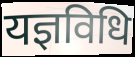
यज्ञविधि